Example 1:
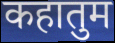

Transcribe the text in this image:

कहातुम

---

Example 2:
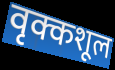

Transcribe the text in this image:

वृक्कशूल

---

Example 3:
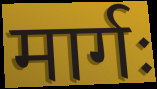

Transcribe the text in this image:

मार्गः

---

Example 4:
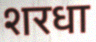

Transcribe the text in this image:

शरधा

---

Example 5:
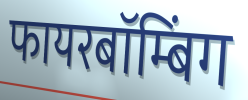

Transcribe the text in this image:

फायरबॉम्बिंग